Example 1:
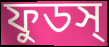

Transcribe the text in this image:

ফুডস্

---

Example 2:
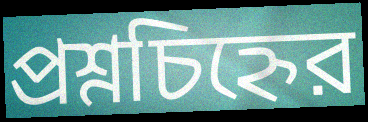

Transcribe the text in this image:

প্রশ্নচিহ্নের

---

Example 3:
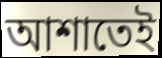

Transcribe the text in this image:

আশাতেই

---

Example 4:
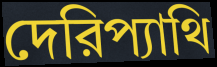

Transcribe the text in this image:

দেরিপ্যাথি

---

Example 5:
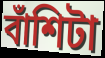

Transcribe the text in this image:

বাঁশিটা